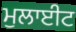
ਮੁਲਾਈਟ